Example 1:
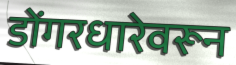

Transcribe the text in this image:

डोंगरधारेवरून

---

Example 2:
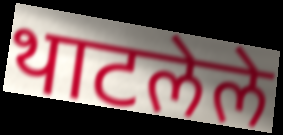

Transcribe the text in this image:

थाटलेले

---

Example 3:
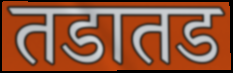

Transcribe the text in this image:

तडातड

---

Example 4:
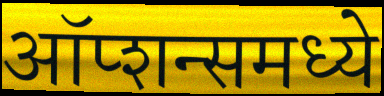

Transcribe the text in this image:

ऑप्शन्समध्ये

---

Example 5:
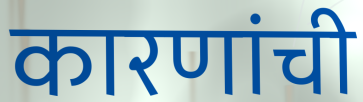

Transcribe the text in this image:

कारणांची